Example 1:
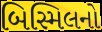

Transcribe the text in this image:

બિસ્મિલનો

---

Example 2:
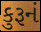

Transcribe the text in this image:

કુરૂનં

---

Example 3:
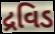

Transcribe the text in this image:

દ્રવિડ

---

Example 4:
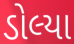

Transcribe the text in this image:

ડોલ્યા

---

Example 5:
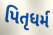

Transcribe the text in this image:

પિતૃધર્મ